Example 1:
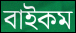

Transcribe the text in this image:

বাইকম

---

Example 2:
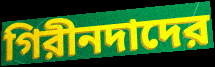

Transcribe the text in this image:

গিরীনদাদের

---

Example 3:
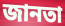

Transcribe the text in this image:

জানতা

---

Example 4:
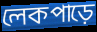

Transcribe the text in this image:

লেকপাড়ে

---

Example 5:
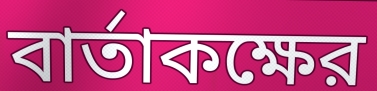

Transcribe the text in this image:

বার্তাকক্ষের